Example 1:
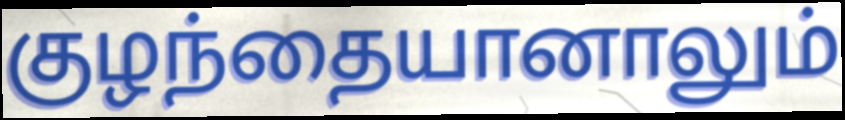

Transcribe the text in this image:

குழந்தையானாலும்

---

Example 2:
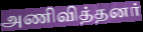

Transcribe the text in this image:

அணிவித்தனர்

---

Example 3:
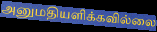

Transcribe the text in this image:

அனுமதியளிக்கவில்லை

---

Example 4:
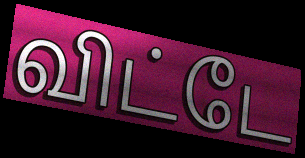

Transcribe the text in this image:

விட்டே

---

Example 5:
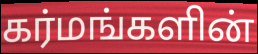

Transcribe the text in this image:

கர்மங்களின்